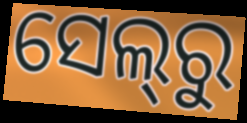
ସେଲ୍‌ରୁ